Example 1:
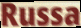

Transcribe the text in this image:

Russa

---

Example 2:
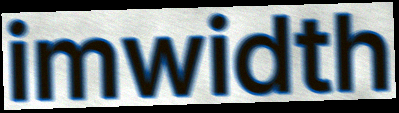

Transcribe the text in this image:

imwidth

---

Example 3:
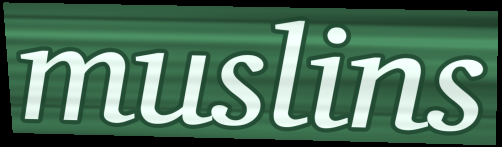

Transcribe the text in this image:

muslins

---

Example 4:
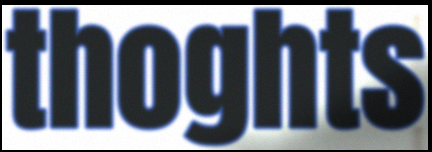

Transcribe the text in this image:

thoghts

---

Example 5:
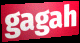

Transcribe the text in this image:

gagah